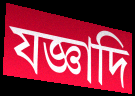
যজ্ঞাদি